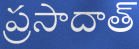
ప్రసాదాత్